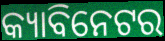
କ୍ୟାବିନେଟର